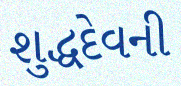
શુદ્ધદેવની